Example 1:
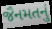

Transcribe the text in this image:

જૈનમતનું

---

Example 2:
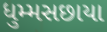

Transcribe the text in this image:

ધુમ્મસછાયા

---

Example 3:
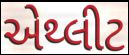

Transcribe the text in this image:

એથ્લીટ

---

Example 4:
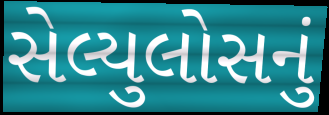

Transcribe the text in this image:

સેલ્યુલોસનું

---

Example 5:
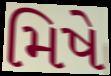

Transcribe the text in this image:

મિષે